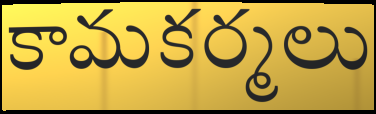
కామకర్మలు